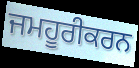
ਜਮਹੂਰੀਕਰਨ